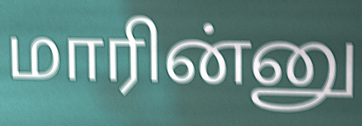
மாரின்னு